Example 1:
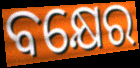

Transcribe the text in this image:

ବକ୍ଷେର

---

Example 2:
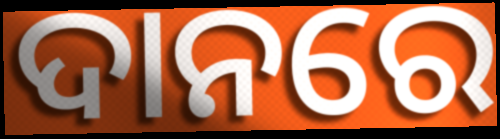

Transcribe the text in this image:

ଦାନରେ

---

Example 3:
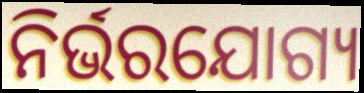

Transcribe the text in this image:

ନିର୍ଭରଯୋଗ୍ୟ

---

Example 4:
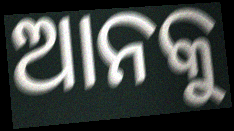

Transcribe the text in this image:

ଆନକୁ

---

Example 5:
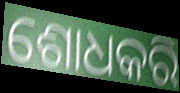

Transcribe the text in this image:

ଶୋଧକରି